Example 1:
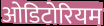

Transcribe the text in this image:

ओडिटोरियम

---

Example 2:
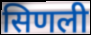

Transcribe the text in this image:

सिणली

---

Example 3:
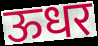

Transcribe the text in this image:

ऊधर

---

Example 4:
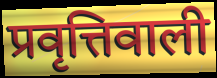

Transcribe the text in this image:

प्रवृत्तिवाली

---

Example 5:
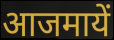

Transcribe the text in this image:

आजमायें